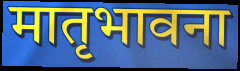
मातृभावना